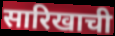
सारिखाची